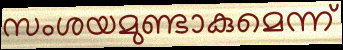
സംശയമുണ്ടാകുമെന്ന്